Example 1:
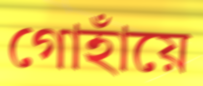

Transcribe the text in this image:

গোহাঁয়ে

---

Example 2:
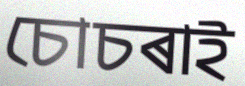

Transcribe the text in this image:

চোচৰাই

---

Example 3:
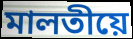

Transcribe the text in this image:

মালতীয়ে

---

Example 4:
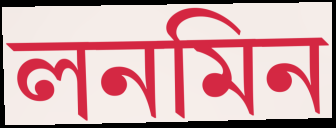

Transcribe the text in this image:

লনমিন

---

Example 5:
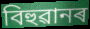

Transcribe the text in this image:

বিহুৱানৰ